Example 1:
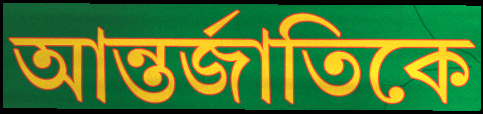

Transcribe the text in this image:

আন্তর্জাতিকে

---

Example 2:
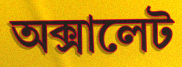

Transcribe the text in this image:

অক্সালেট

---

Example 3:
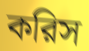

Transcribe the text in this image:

করিস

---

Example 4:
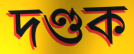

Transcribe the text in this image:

দণ্ডক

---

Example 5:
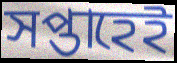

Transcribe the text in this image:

সপ্তাহেই